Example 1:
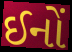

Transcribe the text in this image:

ઈનોં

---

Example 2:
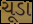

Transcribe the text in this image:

ચૂડા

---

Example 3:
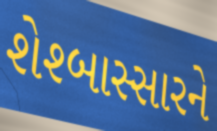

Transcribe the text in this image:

શેશ્બાસ્સારને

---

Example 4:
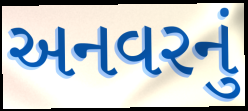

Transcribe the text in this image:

અનવરનું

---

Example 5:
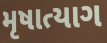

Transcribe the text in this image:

મૃષાત્યાગ